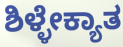
ಶಿಳ್ಳೇಕ್ಯಾತ